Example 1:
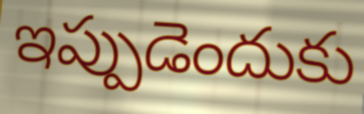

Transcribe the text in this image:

ఇప్పుడెందుకు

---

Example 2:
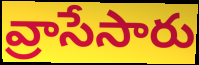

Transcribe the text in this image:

వ్రాసేసారు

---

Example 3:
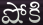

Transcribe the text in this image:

షోకి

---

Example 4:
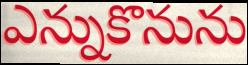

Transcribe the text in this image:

ఎన్నుకొనును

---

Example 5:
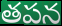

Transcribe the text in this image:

తపన